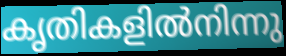
കൃതികളിൽനിന്നു